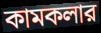
কামকলার